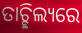
ତାଚ୍ଛିଲ୍ୟରେ